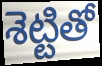
శెట్టితో